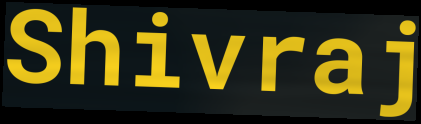
Shivraj